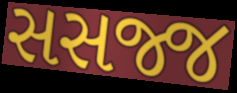
સસજ્જ